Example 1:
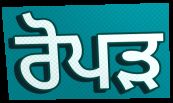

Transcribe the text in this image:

ਰੋਪਡ਼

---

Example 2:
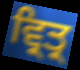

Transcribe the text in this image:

ਵ੍ਰਿਤ੍ਰ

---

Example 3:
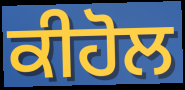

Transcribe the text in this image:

ਕੀਹੋਲ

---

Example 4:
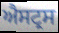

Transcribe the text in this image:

ਐਸਟ੍ਰਸ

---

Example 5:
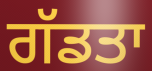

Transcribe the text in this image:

ਗੱਡਤਾ